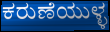
ಕರುಣೆಯುಳ್ಳ